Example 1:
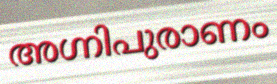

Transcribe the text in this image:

അഗ്നിപുരാണം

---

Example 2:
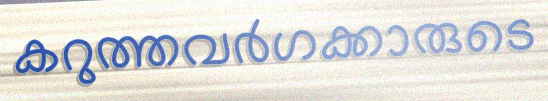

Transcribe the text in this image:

കറുത്തവർഗക്കാരുടെ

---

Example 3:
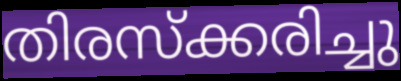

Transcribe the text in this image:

തിരസ്ക്കരിച്ചു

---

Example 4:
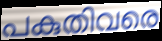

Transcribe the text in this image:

പകുതിവരെ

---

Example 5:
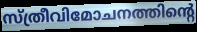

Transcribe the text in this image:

സ്ത്രീവിമോചനത്തിന്റെ